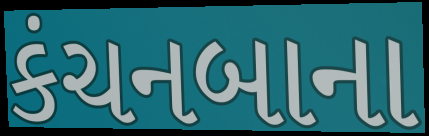
કંચનબાના